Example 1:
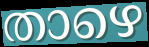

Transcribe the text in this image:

താഴെ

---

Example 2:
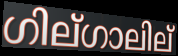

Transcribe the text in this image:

ഗില്ഗാലില്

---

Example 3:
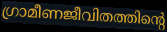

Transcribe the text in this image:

ഗ്രാമീണജീവിതത്തിന്റെ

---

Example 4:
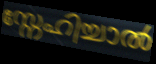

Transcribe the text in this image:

സ്നേഹിച്ചാൽ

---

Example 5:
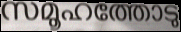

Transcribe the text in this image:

സമൂഹത്തോടു